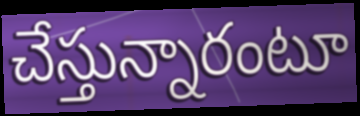
చేస్తున్నారంటూ